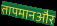
तापमानऔर